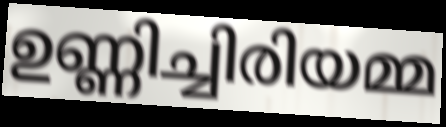
ഉണ്ണിച്ചിരിയമ്മ